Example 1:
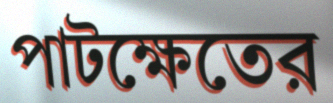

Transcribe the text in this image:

পাটক্ষেতের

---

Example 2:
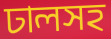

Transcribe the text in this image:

ঢালসহ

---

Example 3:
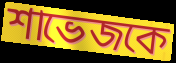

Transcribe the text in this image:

শাভেজকে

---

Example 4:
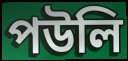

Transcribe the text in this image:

পউলি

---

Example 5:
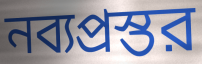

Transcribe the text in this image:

নব্যপ্রস্তর